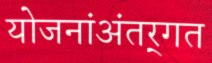
योजनांअंतर्गत